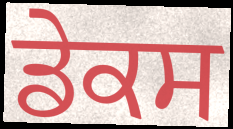
ਡੇਕਸ